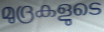
മുദ്രകളുടെ